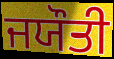
ਜਯੌਤੀ